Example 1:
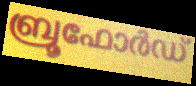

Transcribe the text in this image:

ബ്രൂഫോർഡ്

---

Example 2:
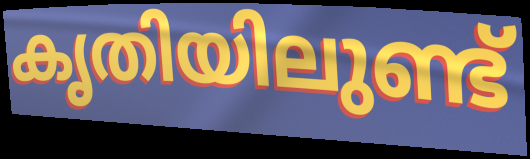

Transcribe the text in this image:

കൃതിയിലുണ്ട്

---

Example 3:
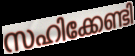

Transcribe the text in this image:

സഹിക്കേണ്ടി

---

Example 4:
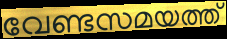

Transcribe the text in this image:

വേണ്ടസമയത്ത്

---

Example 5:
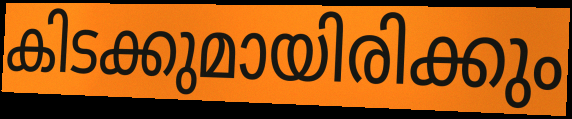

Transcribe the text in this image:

കിടക്കുമായിരിക്കും